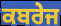
ਕਬਰੇਜ